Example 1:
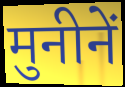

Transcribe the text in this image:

मुनीनें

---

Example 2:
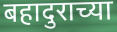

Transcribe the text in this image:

बहादुराच्या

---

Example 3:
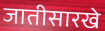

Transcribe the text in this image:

जातीसारखे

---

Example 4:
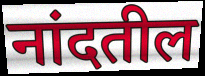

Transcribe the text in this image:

नांदतील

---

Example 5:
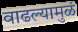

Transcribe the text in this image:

वाढल्यामुळं